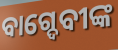
ବାଗ୍ଦେବୀଙ୍କ